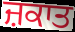
ਜ਼ਕਾਤ